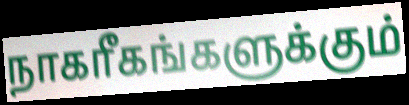
நாகரீகங்களுக்கும்